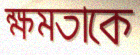
ক্ষমতাকে